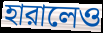
হারালেও